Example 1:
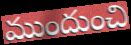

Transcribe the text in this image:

ముందుంచి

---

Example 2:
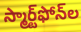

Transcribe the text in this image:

స్మార్ట్‌ఫోన్‌ల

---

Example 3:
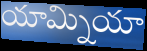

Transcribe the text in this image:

యామ్నియా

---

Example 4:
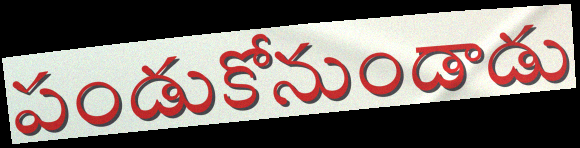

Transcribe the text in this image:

పండుకోనుండాడు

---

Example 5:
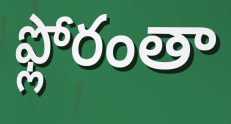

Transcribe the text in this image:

ఫ్లోరంతా